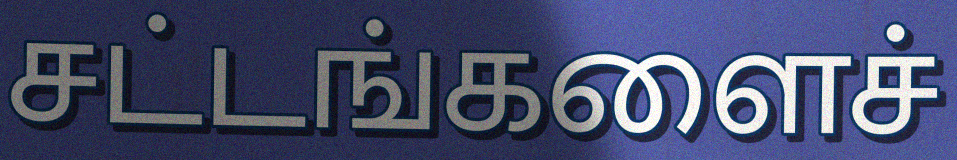
சட்டங்களைச்